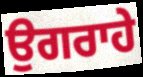
ਉਗਰਾਹੇ